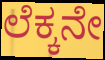
ಲೆಕ್ಕನೇ